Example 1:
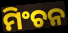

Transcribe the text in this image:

ମିଂଚନ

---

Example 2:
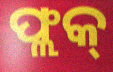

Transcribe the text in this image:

ଫ୍ଲକ୍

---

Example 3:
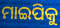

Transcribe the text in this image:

ମାଇପିକୁ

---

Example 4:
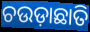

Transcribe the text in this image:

ଚଉଡ଼ାଛାତି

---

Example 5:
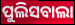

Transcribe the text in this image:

ପୁଲିସବାଲା